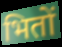
भितों